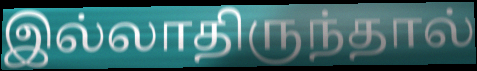
இல்லாதிருந்தால்